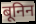
बूनिन